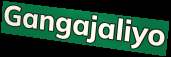
Gangajaliyo